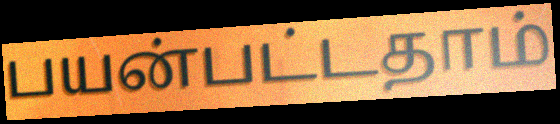
பயன்பட்டதாம்